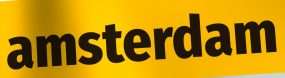
amsterdam